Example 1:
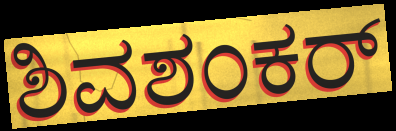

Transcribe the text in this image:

ಶಿವಶಂಕರ್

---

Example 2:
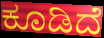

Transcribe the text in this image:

ಕೂಡಿದೆ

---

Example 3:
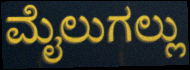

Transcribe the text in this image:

ಮೈಲುಗಲ್ಲು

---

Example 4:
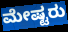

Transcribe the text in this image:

ಮೇಷ್ಟರು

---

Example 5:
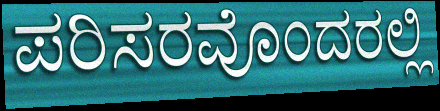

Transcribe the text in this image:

ಪರಿಸರವೊಂದರಲ್ಲಿ